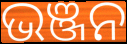
ଭଞ୍ଜନ